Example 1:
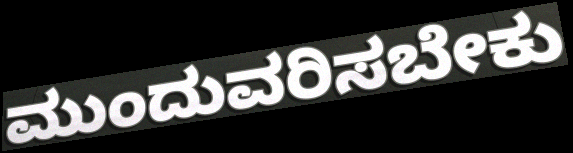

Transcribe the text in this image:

ಮುಂದುವರಿಸಬೇಕು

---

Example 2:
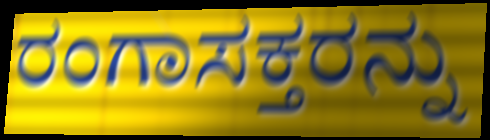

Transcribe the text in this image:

ರಂಗಾಸಕ್ತರನ್ನು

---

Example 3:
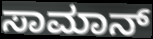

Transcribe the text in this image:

ಸಾಮಾನ್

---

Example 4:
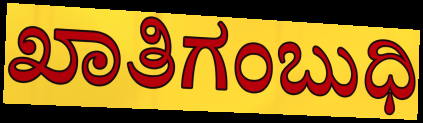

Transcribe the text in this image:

ಖಾತಿಗಂಬುಧಿ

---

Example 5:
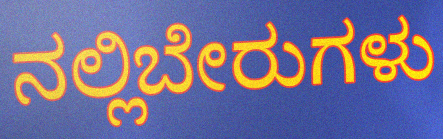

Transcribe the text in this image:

ನಲ್ಲಿಬೇರುಗಳು